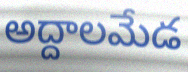
అద్దాలమేడ